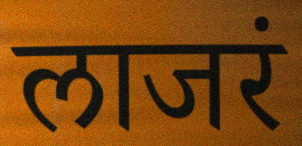
लाजरं